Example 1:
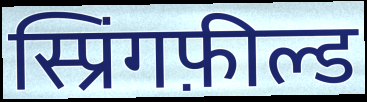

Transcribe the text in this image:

स्प्रिंगफ़ील्ड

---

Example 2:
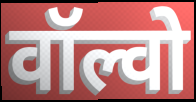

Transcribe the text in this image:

वॉल्वो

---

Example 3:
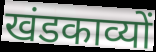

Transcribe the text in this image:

खंडकाव्यों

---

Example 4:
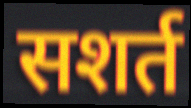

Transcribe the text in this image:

सशर्त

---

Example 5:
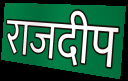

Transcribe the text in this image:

राजदीप